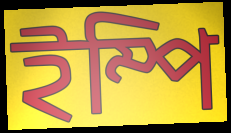
ইম্পি